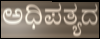
ಅಧಿಪತ್ಯದ